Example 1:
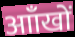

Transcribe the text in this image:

आाँखों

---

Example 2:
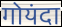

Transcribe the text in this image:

गोयंदा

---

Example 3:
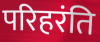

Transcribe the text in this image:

परिहरंति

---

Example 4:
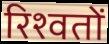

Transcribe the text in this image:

रिश्वतों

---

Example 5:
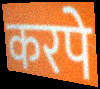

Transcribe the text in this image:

करपे